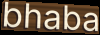
bhaba